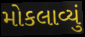
મોકલાવ્યું